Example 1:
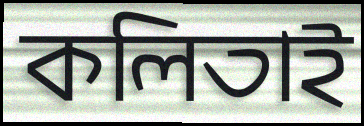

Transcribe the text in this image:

কলিতাই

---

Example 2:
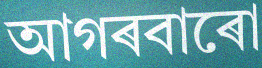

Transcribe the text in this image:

আগৰবাৰো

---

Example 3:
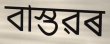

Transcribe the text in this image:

বাস্তৱৰ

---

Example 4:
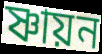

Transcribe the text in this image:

ষ্ণায়ন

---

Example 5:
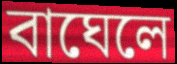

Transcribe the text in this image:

বাঘেলে